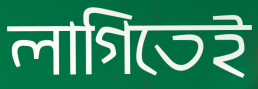
লাগিতেই